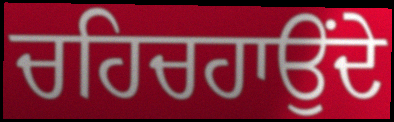
ਚਹਿਚਹਾਉਂਦੇ